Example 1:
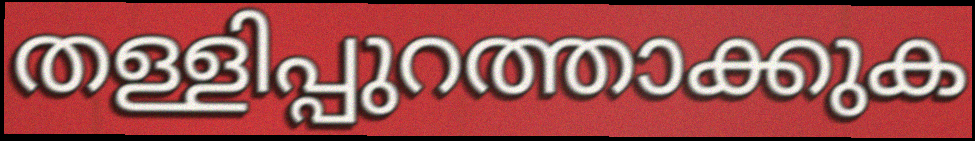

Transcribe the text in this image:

തള്ളിപ്പുറത്താക്കുക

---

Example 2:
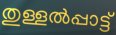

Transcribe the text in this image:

തുള്ളൽപ്പാട്ട്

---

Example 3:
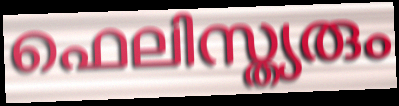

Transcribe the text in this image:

ഫെലിസ്ത്യരും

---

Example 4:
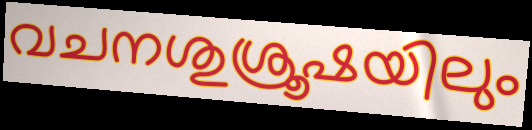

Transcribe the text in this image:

വചനശുശ്രൂഷയിലും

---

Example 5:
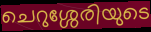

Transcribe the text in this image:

ചെറുശ്ശേരിയുടെ